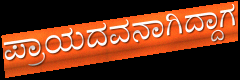
ಪ್ರಾಯದವನಾಗಿದ್ದಾಗ